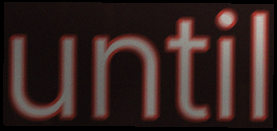
until